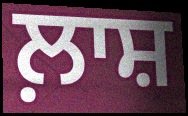
ਲ਼ਾਸ਼